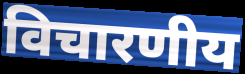
विचारणीय